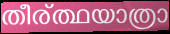
തീര്ത്ഥയാത്രാ